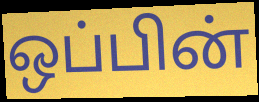
ஒப்பின்